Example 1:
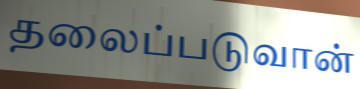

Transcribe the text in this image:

தலைப்படுவான்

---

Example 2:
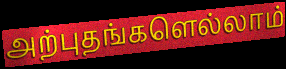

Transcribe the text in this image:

அற்புதங்களெல்லாம்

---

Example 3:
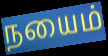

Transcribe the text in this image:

நயைம்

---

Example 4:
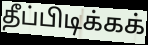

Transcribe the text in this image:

தீப்பிடிக்கக்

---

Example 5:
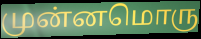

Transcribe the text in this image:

முன்னமொரு